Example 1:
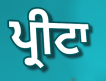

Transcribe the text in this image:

ਪ੍ਰੀਟਾ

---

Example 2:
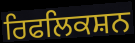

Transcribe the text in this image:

ਰਿਫਲਿਕਸ਼ਨ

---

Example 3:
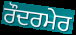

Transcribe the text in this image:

ਰੌਦਰਮੇਰ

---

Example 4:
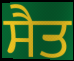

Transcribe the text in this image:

ਸੈਤ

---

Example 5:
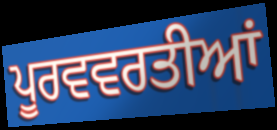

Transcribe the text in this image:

ਪੂਰਵਵਰਤੀਆਂ